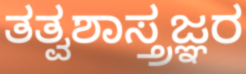
ತತ್ವಶಾಸ್ತ್ರಜ್ಞರ